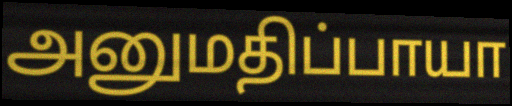
அனுமதிப்பாயா